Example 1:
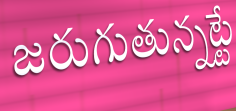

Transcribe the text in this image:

జరుగుతున్నట్టే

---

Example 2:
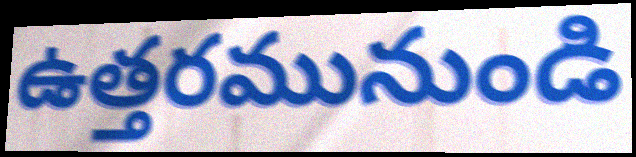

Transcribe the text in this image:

ఉత్తరమునుండి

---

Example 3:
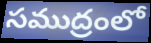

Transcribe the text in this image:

సముద్రంలో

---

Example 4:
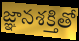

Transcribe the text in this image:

జ్ఞానశక్తితో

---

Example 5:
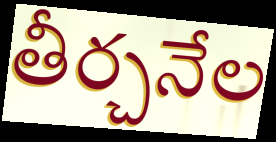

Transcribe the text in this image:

తీర్చనేల